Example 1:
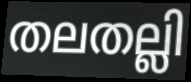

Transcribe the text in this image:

തലതല്ലി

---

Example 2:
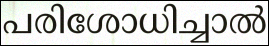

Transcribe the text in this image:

പരിശോധിച്ചാൽ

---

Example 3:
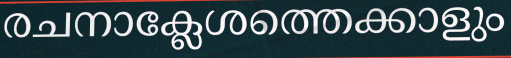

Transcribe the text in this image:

രചനാക്ലേശത്തെക്കാളും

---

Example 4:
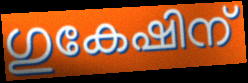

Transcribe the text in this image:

ഗുകേഷിന്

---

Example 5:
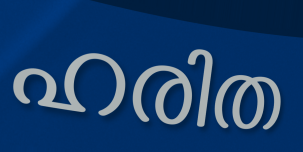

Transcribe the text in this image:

ഹരിത